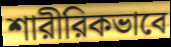
শারীরিকভাবে